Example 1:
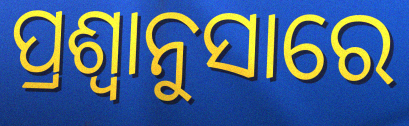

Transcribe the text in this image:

ପ୍ରଶ୍ବାନୁସାରେ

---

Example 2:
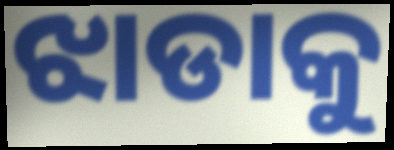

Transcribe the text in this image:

ଝାଡାକୁ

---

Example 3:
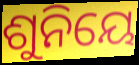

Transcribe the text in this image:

ଶୁନିୟେ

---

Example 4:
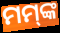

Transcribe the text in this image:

ମମ୍‍ଙ୍କ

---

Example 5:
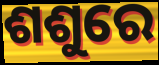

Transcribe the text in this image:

ଶଶୁରେ